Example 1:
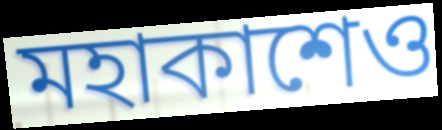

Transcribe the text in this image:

মহাকাশেও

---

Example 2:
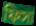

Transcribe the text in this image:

ফিসা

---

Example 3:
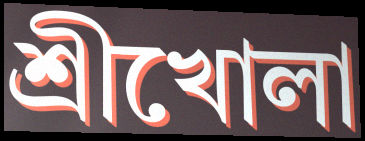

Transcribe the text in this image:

শ্রীখোলা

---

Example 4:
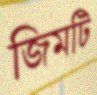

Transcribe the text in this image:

জিমটি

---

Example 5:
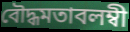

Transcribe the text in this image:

বৌদ্ধমতাবলম্বী